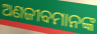
ଅଣଜୀବମାନଙ୍କ